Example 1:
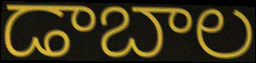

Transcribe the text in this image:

డాబాల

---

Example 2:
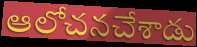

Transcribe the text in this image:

ఆలోచనచేశాడు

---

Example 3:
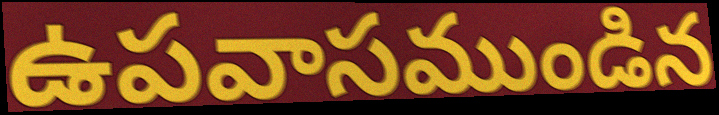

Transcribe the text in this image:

ఉపవాసముండిన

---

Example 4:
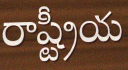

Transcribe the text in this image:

రాష్ట్రీయ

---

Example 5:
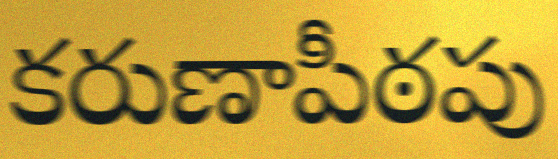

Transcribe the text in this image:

కరుణాపీఠపు